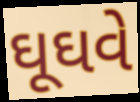
ઘૂઘવે